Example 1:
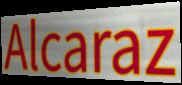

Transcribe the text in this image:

Alcaraz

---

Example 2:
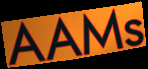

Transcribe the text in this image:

AAMs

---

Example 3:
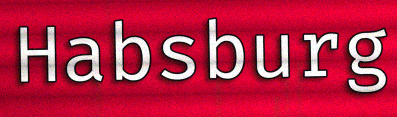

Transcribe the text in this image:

Habsburg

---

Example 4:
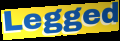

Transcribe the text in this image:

Legged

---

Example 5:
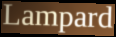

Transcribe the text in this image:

Lampard